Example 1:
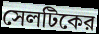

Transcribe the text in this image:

সেলটিকের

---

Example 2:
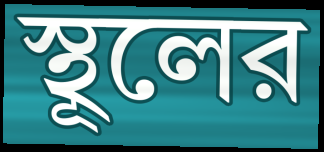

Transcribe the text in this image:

স্থূলের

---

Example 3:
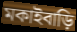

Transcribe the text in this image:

মকাইবাড়ি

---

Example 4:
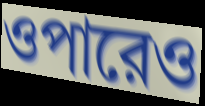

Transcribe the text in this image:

ওপারেও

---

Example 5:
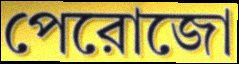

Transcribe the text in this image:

পেরোজো